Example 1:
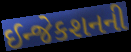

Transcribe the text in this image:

ઈન્જેકશનની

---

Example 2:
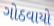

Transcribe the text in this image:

ગોઠવાયો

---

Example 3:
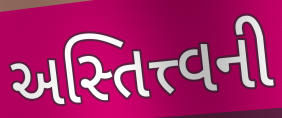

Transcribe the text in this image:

અસ્તિત્ત્વની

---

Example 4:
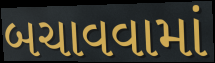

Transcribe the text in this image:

બચાવવામાં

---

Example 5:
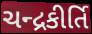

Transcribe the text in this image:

ચન્દ્રકીર્તિ